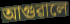
আগুৱালে